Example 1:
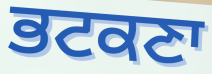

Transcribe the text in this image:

ਭਟਕਣਾ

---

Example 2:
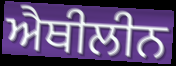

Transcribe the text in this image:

ਐਥੀਲੀਨ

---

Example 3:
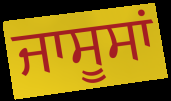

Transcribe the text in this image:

ਜਾਸੂਸਾਂ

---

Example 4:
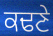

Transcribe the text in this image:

ਕਢਣੇ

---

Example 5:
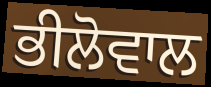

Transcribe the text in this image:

ਭੀਲੋਵਾਲ